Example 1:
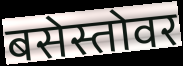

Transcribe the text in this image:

बसेस्तोवर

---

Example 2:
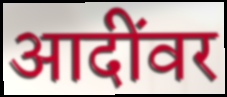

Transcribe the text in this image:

आदींवर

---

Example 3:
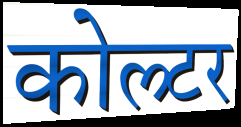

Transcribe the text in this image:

कोल्टर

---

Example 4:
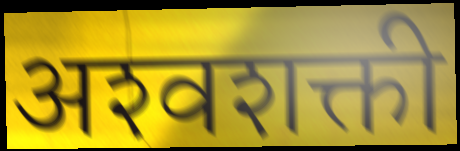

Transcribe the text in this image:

अश्वशक्ती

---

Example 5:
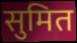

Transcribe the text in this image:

सुमित